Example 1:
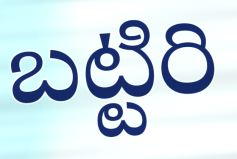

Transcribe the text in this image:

బట్టిరి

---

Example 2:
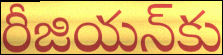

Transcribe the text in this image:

రీజియన్‌కు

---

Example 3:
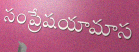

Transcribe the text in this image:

సంప్రేషయామాస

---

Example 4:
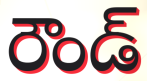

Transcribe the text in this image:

రౌండ్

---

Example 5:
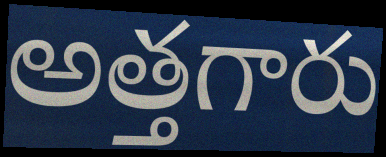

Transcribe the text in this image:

అత్తగారు